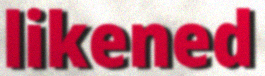
likened